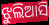
ଝୁଲିଆସି